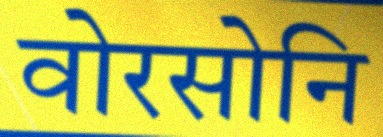
वोरसोनि